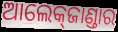
ଆଲେକ୍‌ଜାଣ୍ଡାର